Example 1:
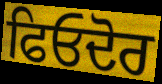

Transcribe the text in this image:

ਫਿਓਦੋਰ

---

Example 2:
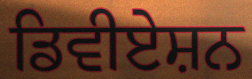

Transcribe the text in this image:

ਡਿਵੀਏਸ਼ਨ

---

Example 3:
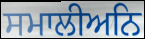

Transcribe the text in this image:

ਸਮਾਲੀਅਨਿ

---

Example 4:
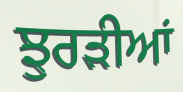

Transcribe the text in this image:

ਝੁਰੜੀਆਂ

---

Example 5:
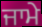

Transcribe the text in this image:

ਜਾਮੇ